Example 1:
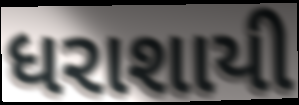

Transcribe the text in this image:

ધરાશાયી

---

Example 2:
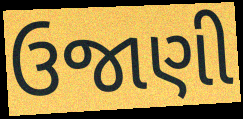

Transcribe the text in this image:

ઉજાણી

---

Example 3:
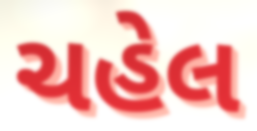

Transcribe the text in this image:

ચહેલ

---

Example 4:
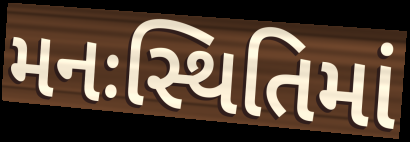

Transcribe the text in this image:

મનઃસ્થિતિમાં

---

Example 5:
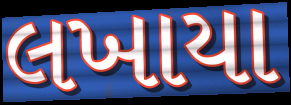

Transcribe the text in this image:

લખાયા